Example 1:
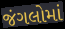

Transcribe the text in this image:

જંગલોમાં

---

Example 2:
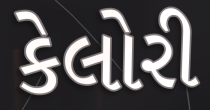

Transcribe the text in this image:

કેલોરી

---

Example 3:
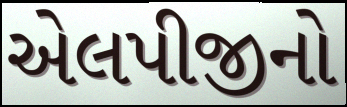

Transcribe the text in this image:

એલપીજીનો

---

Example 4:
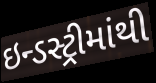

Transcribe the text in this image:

ઇન્ડસ્ટ્રીમાંથી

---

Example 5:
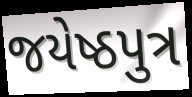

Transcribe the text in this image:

જયેષ્ઠપુત્ર